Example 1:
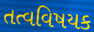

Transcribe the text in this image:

તત્વવિષયક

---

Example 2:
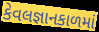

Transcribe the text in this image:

કેવલજ્ઞાનકાળમાં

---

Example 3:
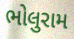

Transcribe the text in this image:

ભોલુરામ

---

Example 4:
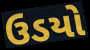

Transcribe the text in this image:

ઉડયો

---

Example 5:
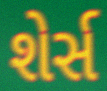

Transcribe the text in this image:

શેર્સ